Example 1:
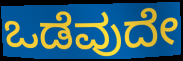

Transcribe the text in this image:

ಒಡೆವುದೇ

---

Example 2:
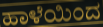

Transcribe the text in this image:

ಹಾಳೆಯಿಂದ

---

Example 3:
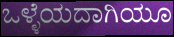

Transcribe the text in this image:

ಒಳ್ಳೆಯದಾಗಿಯೂ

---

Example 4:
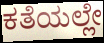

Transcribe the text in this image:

ಕತೆಯಲ್ಲೇ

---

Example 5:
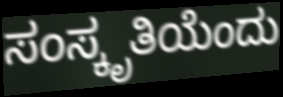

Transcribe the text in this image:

ಸಂಸ್ಕೃತಿಯೆಂದು